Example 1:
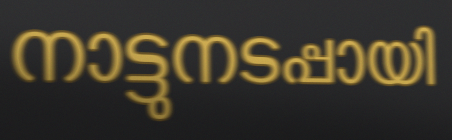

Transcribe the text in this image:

നാട്ടുനടപ്പായി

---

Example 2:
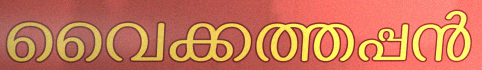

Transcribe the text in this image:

വൈക്കത്തപ്പൻ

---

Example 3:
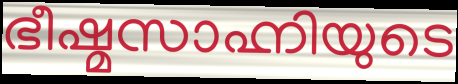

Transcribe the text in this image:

ഭീഷ്മസാഹ്നിയുടെ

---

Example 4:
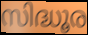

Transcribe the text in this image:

സിദ്ധൂര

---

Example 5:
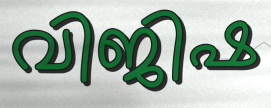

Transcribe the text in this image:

വിജിഷ